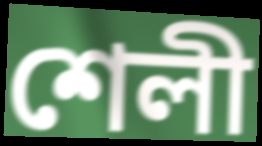
শেলী